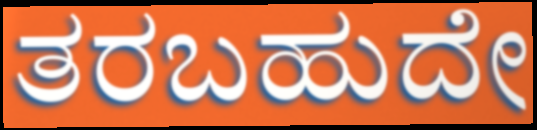
ತರಬಹುದೇ